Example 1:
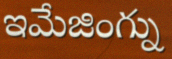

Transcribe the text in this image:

ఇమేజింగ్ను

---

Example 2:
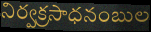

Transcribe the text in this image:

నిర్వక్రసాధనంబుల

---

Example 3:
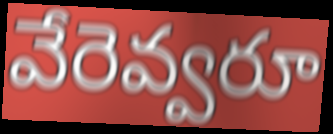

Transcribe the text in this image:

వేరెవ్వరూ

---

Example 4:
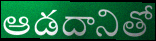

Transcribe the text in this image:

ఆడదానితో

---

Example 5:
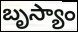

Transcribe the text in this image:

బృస్యాం